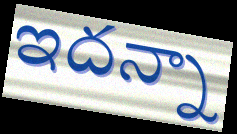
ఇదన్నా